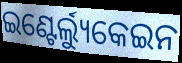
ଇଣ୍ଟେର୍ଲ୍ୟୁକେଇନ